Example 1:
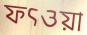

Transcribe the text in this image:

ফৎওয়া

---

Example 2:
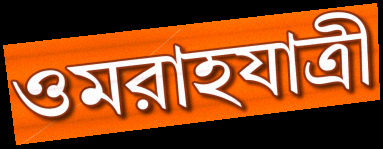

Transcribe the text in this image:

ওমরাহযাত্রী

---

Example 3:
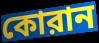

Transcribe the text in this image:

কোরান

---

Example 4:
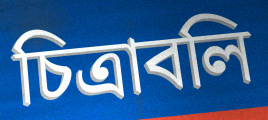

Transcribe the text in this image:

চিত্রাবলি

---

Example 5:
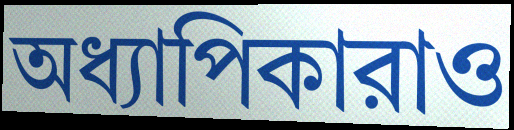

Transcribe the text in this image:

অধ্যাপিকারাও